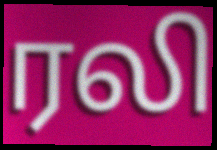
ரலி